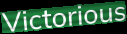
Victorious